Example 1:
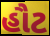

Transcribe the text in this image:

હૌટ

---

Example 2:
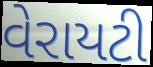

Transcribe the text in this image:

વેરાયટી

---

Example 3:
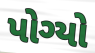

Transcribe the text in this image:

પોગ્યો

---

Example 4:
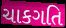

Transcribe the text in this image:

ચાકગતિ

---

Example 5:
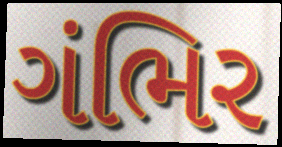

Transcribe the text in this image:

ગંભિર